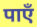
पाएँ